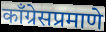
काँग्रेसप्रमाणे